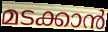
മടക്കാൻ